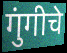
गुंगीचे